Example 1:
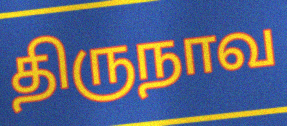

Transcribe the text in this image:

திருநாவ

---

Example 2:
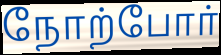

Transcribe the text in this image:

நோற்போர்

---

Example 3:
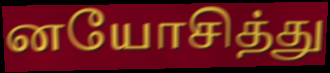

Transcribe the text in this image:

னயோசித்து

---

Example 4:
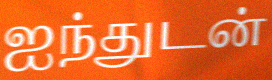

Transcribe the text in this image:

ஐந்துடன்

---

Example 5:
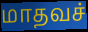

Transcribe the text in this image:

மாதவச்